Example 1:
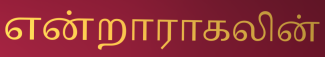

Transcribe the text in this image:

என்றாராகலின்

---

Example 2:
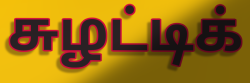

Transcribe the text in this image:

சுழட்டிக்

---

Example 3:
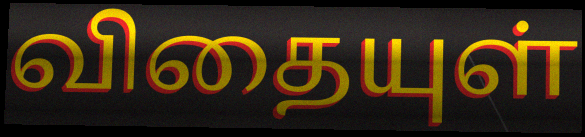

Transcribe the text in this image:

விதையுள்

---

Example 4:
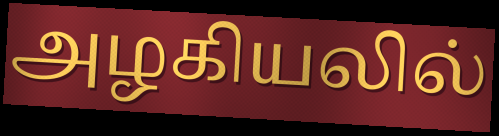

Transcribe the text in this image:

அழகியலில்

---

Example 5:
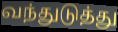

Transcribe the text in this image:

வந்துடுத்து